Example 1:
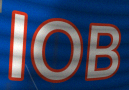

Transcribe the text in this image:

IOB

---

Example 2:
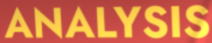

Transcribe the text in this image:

ANALYSIS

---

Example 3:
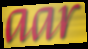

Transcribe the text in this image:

aar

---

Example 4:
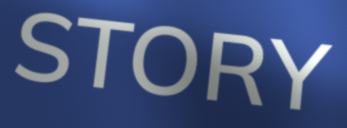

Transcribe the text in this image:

STORY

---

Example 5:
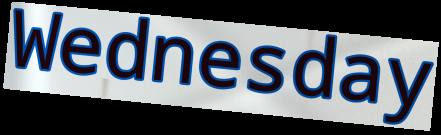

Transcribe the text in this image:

Wednesday